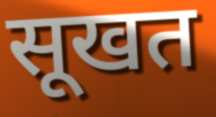
सूखत